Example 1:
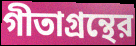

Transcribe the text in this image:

গীতাগ্রন্থের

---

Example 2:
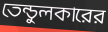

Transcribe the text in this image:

তেন্ডুলকারের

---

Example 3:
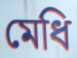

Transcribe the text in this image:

মেধি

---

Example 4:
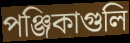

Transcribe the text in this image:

পঞ্জিকাগুলি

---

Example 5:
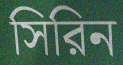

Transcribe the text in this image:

সিরিন